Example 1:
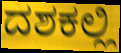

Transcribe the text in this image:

ದಶಕಲ್ಲಿ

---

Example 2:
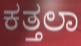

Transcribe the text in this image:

ಕತ್ತಲಾ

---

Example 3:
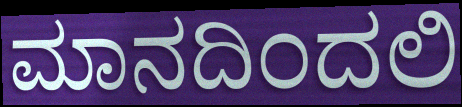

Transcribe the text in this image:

ಮಾನದಿಂದಲಿ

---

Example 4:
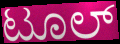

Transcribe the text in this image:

ಟೂಲ್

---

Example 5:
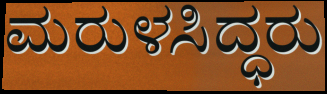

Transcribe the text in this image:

ಮರುಳಸಿದ್ಧರು